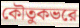
কৌতুকভরে